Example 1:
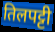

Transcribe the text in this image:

तिलपट्टी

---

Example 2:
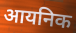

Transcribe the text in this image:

आयनिक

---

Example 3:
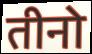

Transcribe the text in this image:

तीनो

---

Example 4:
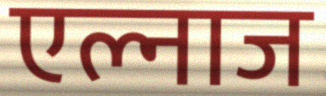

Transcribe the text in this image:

एल्नाज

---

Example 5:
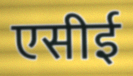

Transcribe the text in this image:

एसीई